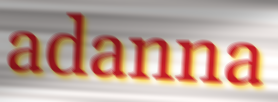
adanna